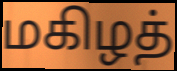
மகிழத்